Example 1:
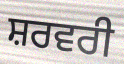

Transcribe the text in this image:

ਸ਼ਰਵਰੀ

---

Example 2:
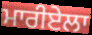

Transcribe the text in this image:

ਮਾਰੀਏਲਾ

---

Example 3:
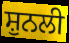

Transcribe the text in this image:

ਸ਼ੁਨਲੀ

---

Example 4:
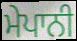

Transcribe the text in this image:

ਮੇਪਾਨੀ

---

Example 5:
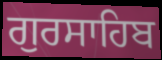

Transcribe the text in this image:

ਗੁਰਸਾਹਿਬ